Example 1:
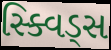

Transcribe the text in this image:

સ્ક્વિડ્સ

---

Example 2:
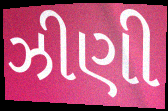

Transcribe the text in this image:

ઝીણી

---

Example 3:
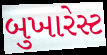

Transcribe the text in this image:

બુખારેસ્ટ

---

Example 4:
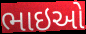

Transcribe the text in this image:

ભાઇઓ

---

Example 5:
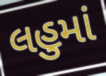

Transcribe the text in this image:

લહુમાં